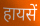
हायसें